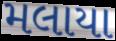
મલાયા